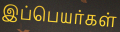
இப்பெயர்கள்